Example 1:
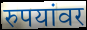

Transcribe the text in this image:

रुपयांवर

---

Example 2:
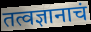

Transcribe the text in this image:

तत्वज्ञानाचं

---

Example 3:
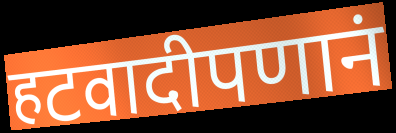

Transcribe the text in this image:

हटवादीपणानं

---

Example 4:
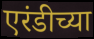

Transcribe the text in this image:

एरंडीच्या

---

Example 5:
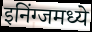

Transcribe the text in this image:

इनिंग्जमध्ये